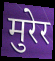
मुरेर